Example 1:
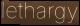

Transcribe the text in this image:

lethargy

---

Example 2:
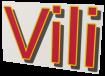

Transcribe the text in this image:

Vili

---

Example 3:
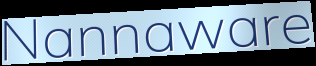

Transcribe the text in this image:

Nannaware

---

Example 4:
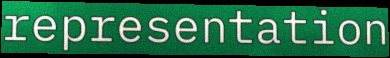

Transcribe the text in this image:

representation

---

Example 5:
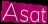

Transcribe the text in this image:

Asat